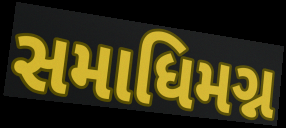
સમાધિમગ્ન